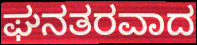
ಘನತರವಾದ